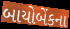
બાયોબેંકના